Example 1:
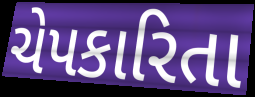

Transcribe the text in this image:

ચેપકારિતા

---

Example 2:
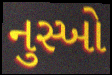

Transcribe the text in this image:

નુસ્ખો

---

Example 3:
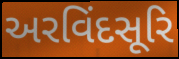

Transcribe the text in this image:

અરવિંદસૂરિ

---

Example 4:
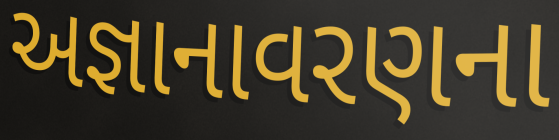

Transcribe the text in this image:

અજ્ઞાનાવરણના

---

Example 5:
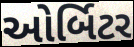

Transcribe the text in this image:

ઓર્બિટર